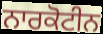
ਨਾਰਕੋਟੀਨ